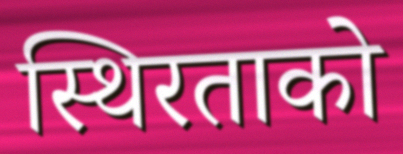
स्थिरताको